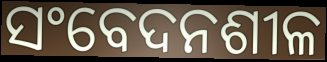
ସଂବେଦନଶୀଳ